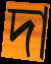
দা